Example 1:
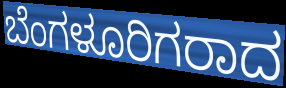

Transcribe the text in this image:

ಬೆಂಗಳೂರಿಗರಾದ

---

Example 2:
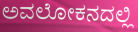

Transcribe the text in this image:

ಅವಲೋಕನದಲ್ಲಿ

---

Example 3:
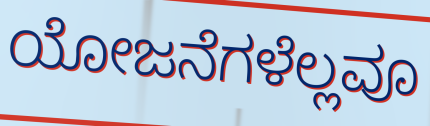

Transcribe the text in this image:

ಯೋಜನೆಗಳೆಲ್ಲವೂ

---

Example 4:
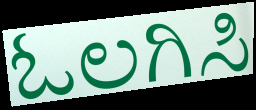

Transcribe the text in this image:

ಓಲಗಿಸಿ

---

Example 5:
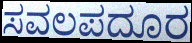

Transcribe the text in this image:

ಸವಲಪದೂರ